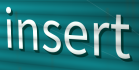
insert